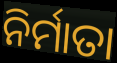
ନିର୍ମାତା